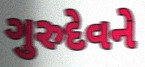
ગુરુદેવને